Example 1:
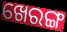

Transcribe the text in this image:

ଖେରଙ୍ଗ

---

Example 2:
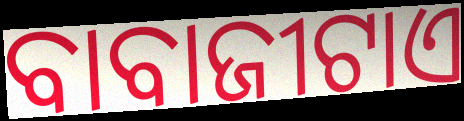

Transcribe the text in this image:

ବାବାଜୀଟାଏ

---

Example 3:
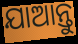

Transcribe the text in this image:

ଯାଆନ୍ତୁ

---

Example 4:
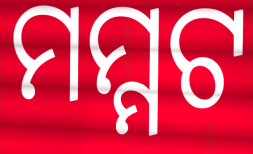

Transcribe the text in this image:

ମମ୍ମଟ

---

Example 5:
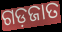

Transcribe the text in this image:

ଗଡ଼ଜାତ